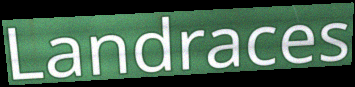
Landraces